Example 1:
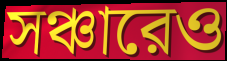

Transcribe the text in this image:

সঞ্চারেও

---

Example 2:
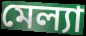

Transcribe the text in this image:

মেল্যা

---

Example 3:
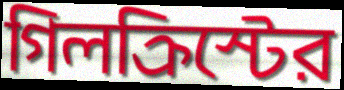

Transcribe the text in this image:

গিলক্রিস্টের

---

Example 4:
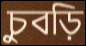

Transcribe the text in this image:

চুবড়ি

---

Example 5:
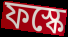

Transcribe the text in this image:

ফস্কে